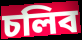
চলিব